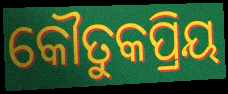
କୌତୁକପ୍ରିୟ